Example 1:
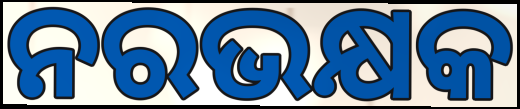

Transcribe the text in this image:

ନରଭକ୍ଷକ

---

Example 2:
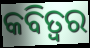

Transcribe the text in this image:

କବିତ୍ଵର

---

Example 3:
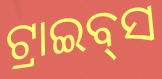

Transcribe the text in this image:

ଟ୍ରାଇବ୍‌ସ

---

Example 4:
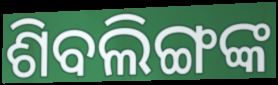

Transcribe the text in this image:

ଶିବଲିଙ୍ଗଙ୍କ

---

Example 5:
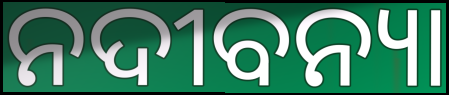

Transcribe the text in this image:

ନଦୀବନ୍ୟା